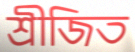
শ্রীজিত